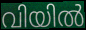
വിയിൽ